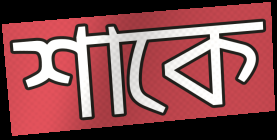
শাকে